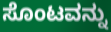
ಸೊಂಟವನ್ನು